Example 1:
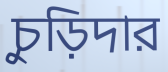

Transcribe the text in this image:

চুড়িদার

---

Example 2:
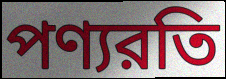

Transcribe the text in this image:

পণ্যরতি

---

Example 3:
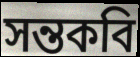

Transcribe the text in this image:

সন্তকবি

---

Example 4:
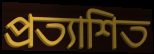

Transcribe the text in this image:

প্রত্যাশিত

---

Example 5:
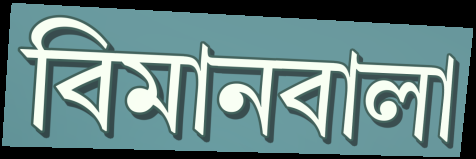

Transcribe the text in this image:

বিমানবালা